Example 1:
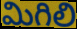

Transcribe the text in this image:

మిగిలి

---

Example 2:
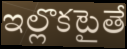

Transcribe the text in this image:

ఇల్లొకటైతే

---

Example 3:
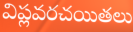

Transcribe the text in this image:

విప్లవరచయితలు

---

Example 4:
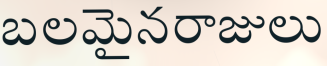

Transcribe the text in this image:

బలమైనరాజులు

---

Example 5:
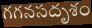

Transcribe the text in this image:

గగనసదృశం